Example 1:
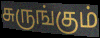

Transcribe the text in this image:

சுருங்கும்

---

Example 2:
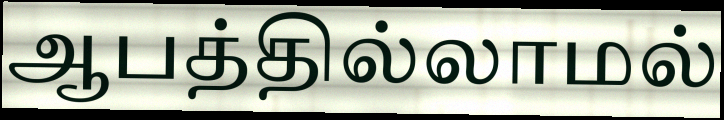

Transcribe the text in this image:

ஆபத்தில்லாமல்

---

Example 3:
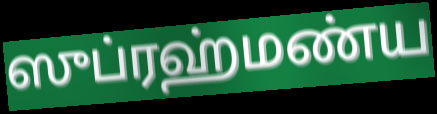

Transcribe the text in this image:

ஸுப்ரஹ்மண்ய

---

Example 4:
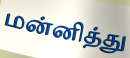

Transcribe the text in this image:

மன்னித்து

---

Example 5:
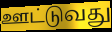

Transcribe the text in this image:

ஊட்டுவது